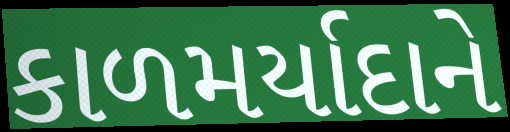
કાળમર્યાદાને